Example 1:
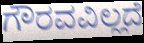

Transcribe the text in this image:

ಗೌರವವಿಲ್ಲದೆ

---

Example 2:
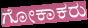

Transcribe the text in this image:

ಗೋಕಾಕರು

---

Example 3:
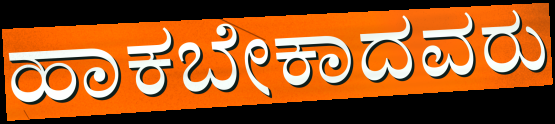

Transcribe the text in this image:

ಹಾಕಬೇಕಾದವರು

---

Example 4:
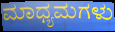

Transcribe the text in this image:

ಮಾಧ್ಯಮಗಳು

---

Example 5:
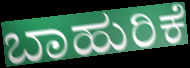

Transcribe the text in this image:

ಬಾಹುರಿಕೆ